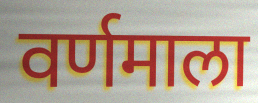
वर्णमाला